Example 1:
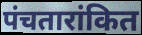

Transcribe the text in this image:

पंचतारांकित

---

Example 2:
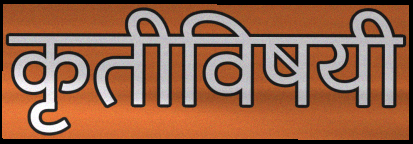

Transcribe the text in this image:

कृतीविषयी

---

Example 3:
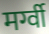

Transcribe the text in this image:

मर्ग्वी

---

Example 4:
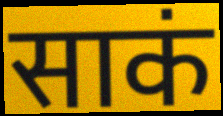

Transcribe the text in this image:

साकं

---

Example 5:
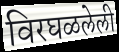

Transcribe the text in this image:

विरघळलेली